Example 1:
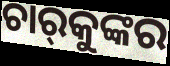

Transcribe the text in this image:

ଚାର୍‌କୁଙ୍କର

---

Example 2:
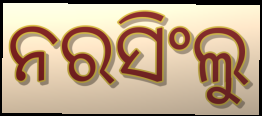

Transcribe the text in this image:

ନରସିଂଲୁ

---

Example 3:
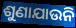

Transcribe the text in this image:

ଶୁଣାଯାଉନି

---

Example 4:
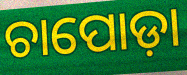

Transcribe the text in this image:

ଚାପୋଡ଼ା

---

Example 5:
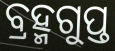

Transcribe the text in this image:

ବ୍ରହ୍ମଗୁପ୍ତ